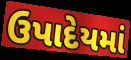
ઉપાદેયમાં